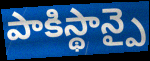
పాకిస్థాన్పై